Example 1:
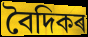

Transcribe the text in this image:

বৈদিকৰ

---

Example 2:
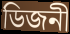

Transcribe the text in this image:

ডিজনী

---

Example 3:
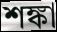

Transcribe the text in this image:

শঙ্কা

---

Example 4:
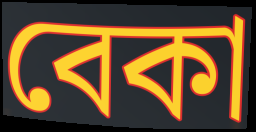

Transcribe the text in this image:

বেকা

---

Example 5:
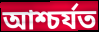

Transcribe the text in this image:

আশ্চৰ্যত